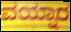
ವಯ್ನಾರ